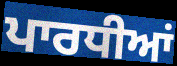
ਪਾਰਧੀਆਂ